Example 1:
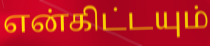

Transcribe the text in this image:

என்கிட்டயும்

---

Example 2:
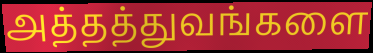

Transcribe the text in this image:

அத்தத்துவங்களை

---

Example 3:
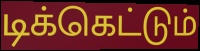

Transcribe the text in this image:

டிக்கெட்டும்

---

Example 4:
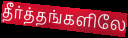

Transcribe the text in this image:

தீர்த்தங்களிலே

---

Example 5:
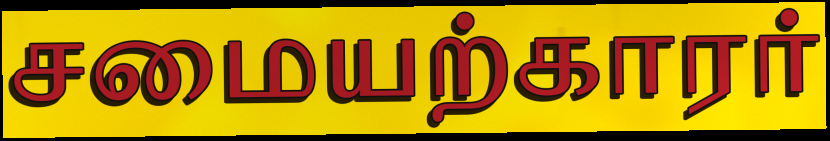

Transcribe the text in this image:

சமையற்காரர்